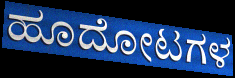
ಹೂದೋಟಗಳ